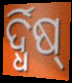
ର୍ଦ୍ଧିଷ୍